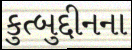
કુત્બુદ્દીનના